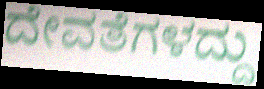
ದೇವತೆಗಳದ್ದು